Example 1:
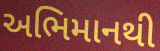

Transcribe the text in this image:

અભિમાનથી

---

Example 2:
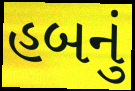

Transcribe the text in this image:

હબનું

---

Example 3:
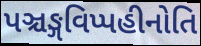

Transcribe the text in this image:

પઞ્ચઙ્ગવિપ્પહીનોતિ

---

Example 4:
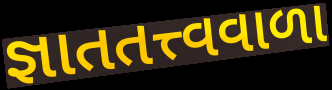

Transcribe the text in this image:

જ્ઞાતતત્ત્વવાળા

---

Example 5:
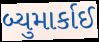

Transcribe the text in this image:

બ્યુમાર્કાઈ